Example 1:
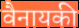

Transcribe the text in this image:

वैनायकी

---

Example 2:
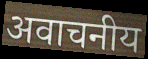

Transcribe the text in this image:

अवाचनीय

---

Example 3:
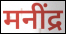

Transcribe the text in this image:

मनींद्र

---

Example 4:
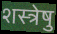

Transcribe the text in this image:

शस्त्रेषु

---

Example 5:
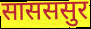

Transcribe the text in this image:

सासससुर